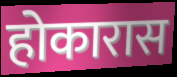
होकारास